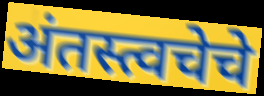
अंतस्त्वचेचे